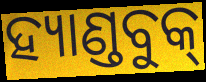
ହ୍ୟାଣ୍ଡବୁକ୍